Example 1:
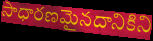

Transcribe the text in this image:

సాధారణమైనదానికిని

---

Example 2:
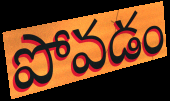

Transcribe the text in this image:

పోవడం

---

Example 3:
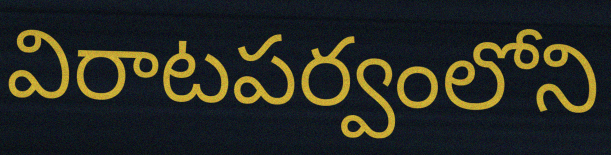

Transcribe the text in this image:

విరాటపర్వంలోని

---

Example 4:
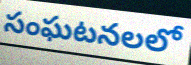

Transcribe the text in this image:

సంఘటనలలో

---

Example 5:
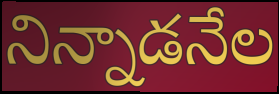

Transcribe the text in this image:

నిన్నాడనేల